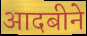
आदबीने